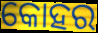
କୋହର